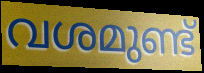
വശമുണ്ട്